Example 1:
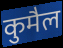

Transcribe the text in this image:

कुमैल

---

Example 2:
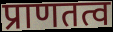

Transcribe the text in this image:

प्राणतत्व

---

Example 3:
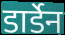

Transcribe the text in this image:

डार्डेन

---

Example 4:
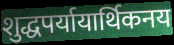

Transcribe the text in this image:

शुद्धपर्यायार्थिकनय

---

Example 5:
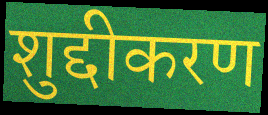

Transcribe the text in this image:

शुद्दीकरण